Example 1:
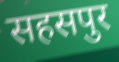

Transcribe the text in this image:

सहसपुर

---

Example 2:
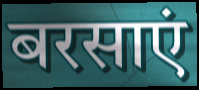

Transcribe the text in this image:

बरसाएं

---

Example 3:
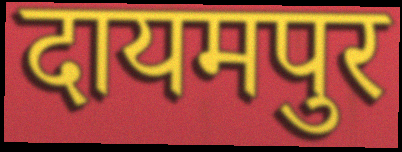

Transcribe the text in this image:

दायमपुर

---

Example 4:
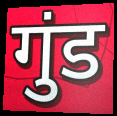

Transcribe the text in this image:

गुंड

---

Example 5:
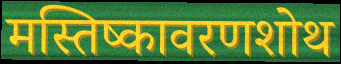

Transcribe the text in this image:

मस्तिष्कावरणशोथ